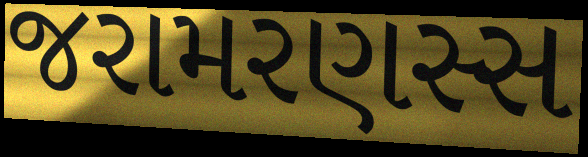
જરામરણસ્સ